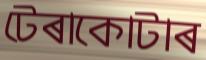
টেৰাকোটাৰ